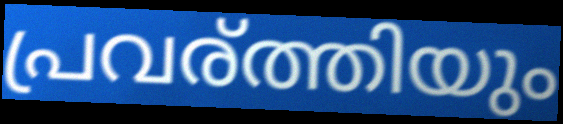
പ്രവര്ത്തിയും